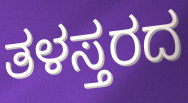
ತಳಸ್ತರದ